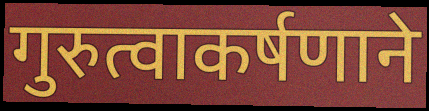
गुरुत्वाकर्षणाने